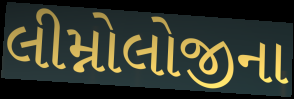
લીમ્નોલોજીના